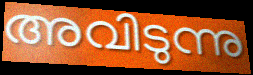
അവിടുന്നു